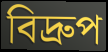
বিদ্ৰুপ